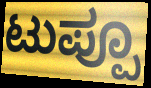
ಟುಪ್ಪೂ